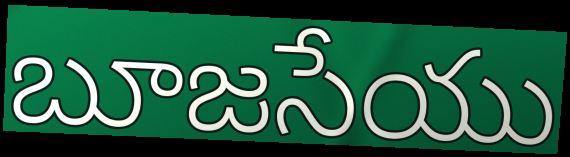
బూజసేయు